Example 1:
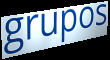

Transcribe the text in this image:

grupos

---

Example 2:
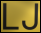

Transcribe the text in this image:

LJ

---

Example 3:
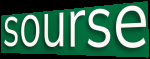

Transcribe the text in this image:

sourse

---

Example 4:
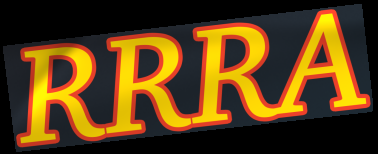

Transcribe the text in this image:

RRRA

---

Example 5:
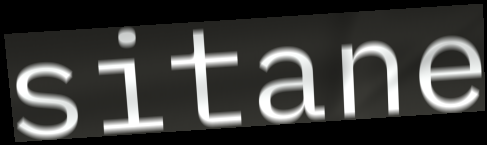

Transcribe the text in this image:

sitane